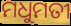
ମଧୁମତୀ